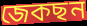
জেকছন